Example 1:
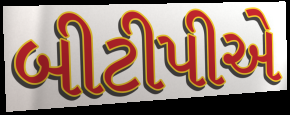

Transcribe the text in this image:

બીટીપીએ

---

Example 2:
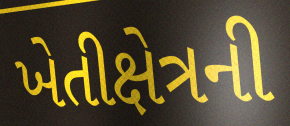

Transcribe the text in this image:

ખેતીક્ષેત્રની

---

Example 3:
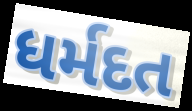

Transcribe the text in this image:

ધર્મદત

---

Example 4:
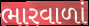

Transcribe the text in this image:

ભારવાળાં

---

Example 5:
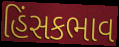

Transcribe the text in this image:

હિંસકભાવ